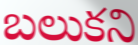
బలుకని